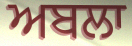
ਅਬਲਾ